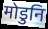
मोडुनि